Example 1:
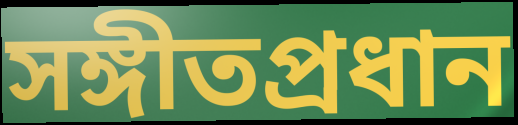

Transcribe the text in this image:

সঙ্গীতপ্রধান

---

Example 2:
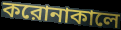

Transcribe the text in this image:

করোনাকালে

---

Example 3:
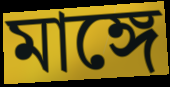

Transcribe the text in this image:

মাঙ্গে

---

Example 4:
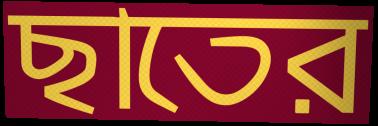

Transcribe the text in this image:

ছাতের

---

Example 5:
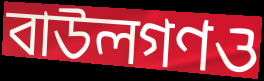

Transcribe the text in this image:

বাউলগণও